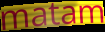
matam